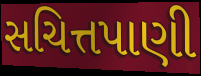
સચિત્તપાણી